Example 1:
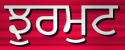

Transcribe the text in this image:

ਝੁਰਮੁਟ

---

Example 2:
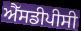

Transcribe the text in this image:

ਐੱਸਡੀਪੀਸੀ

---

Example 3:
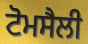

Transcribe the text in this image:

ਟੋਮਸੈਲੀ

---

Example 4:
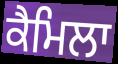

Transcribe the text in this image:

ਕੈਮਿਲਾ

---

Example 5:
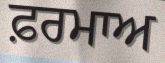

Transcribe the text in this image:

ਫ਼ਰਮਾਅ